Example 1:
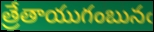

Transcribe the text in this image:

త్రేతాయుగంబునఁ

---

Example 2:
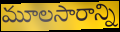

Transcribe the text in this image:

మూలసారాన్ని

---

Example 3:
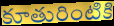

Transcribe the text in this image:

కూతురింటికి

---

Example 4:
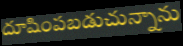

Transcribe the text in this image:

దూషింపబడుచున్నాను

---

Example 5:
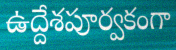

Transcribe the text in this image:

ఉద్దేశపూర్వకంగా